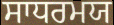
ਸਾਧਰਮਯ